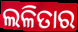
ଲଳିତାର